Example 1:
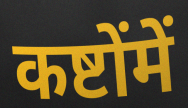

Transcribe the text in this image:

कष्टोंमें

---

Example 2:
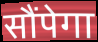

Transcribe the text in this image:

सौंपेगा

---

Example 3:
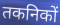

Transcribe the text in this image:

तकनिकों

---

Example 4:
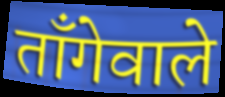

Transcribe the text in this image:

ताँगेवाले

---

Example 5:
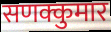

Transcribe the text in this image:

सणक्कुमार